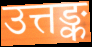
उत्तङ्क